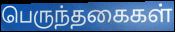
பெருந்தகைகள்